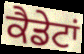
ਕੈਡੇਟਾਂ